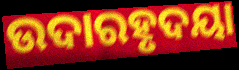
ଉଦାରହୃଦୟା